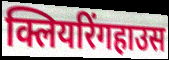
क्लियरिंगहाउस